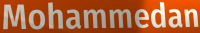
Mohammedan